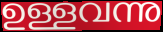
ഉള്ളവന്നു